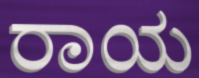
ರಾಯ